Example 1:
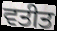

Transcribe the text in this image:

ਵਤੀਤ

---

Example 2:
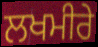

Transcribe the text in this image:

ਲਖਮੀਰੇ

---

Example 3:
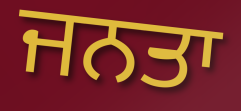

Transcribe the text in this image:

ਜਨਤਾ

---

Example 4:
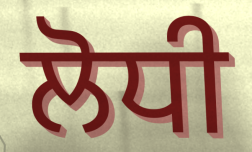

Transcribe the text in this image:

ਲੋਧੀ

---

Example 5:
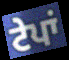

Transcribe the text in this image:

ਟੇਪਾਂ